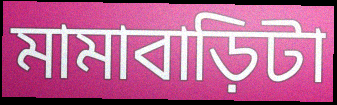
মামাবাড়িটা